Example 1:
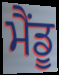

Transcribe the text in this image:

ਮੈਂਡੂ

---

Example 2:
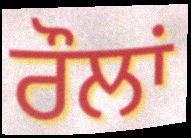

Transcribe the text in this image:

ਰੌਲਾਂ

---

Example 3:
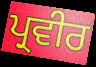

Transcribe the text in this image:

ਪ੍ਰਵੀਰ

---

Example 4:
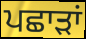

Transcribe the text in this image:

ਪਛਾੜਾਂ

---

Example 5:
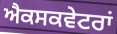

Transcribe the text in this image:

ਐਕਸਕਵੇਟਰਾਂ